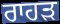
ਰਾਹੜ